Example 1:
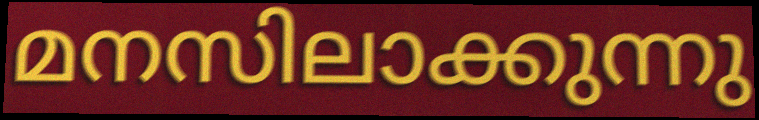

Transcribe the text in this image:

മനസിലാക്കുന്നു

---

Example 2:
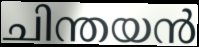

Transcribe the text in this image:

ചിന്തയൻ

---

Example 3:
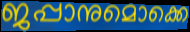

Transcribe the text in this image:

ജപ്പാനുമൊക്കെ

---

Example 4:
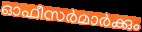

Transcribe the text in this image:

ഓഫീസർമാർക്കും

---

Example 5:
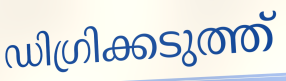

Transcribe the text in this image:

ഡിഗ്രിക്കടുത്ത്